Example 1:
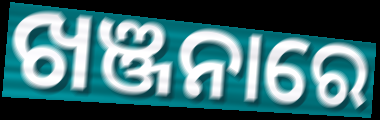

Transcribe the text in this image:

ଖଞ୍ଜନାରେ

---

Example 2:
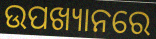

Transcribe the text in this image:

ଉପଖ୍ୟାନରେ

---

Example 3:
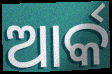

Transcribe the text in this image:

ଆର୍କ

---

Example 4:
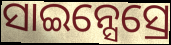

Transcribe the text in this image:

ସାଇନ୍ସେସ୍ରେ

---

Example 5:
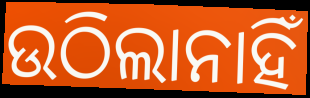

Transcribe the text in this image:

ଉଠିଲାନାହିଁ